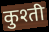
कुश्ती